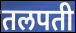
तलपती